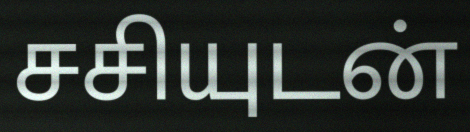
சசியுடன்